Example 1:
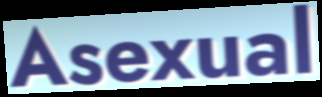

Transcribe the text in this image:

Asexual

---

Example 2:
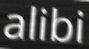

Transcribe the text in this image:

alibi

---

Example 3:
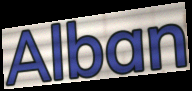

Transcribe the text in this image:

Alban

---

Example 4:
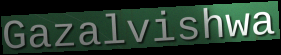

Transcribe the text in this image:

Gazalvishwa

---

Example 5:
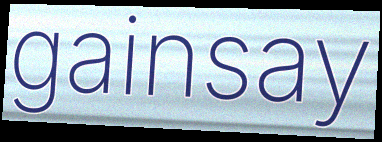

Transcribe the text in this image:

gainsay